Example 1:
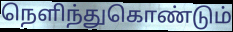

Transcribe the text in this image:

நெளிந்துகொண்டும்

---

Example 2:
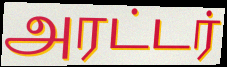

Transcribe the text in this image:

அரட்டர்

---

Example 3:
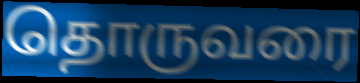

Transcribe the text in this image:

தொருவரை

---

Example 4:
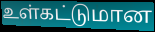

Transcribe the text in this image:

உள்கட்டுமான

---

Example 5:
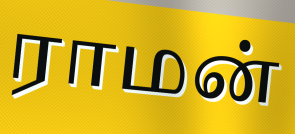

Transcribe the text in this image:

ராமன்